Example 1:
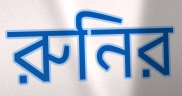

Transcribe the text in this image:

রুনির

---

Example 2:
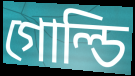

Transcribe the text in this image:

গোল্ডি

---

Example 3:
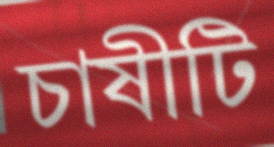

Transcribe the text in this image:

চাষীটি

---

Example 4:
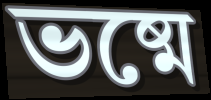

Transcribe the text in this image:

ভষ্মে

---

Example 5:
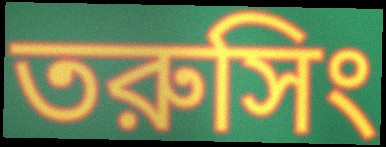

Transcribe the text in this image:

তরুসিং